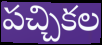
పచ్చికల